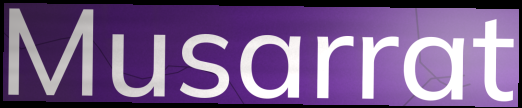
Musarrat